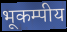
भूकम्पीय